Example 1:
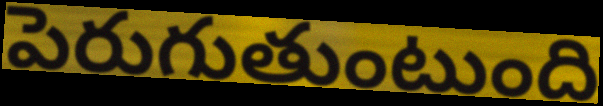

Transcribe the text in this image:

పెరుగుతుంటుంది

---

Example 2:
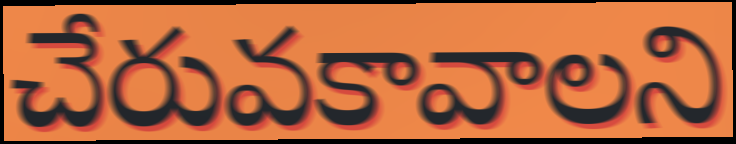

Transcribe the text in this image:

చేరువకావాలని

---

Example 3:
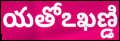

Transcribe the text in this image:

యతోఽఖణ్డి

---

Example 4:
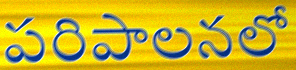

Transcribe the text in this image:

పరిపాలనలో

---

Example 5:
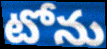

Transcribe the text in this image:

టోను